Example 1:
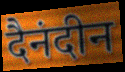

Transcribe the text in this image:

दैनंदीन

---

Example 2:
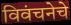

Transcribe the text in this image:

विवंचनेचे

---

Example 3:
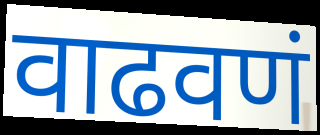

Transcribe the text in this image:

वाढवणं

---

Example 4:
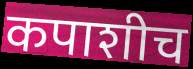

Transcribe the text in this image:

कपाशीच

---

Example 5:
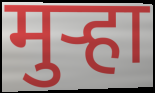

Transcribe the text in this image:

मुऱ्हा